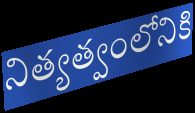
నిత్యత్వంలోనికి